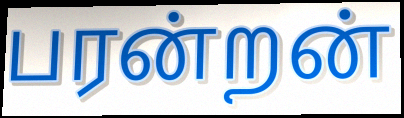
பரன்றன்